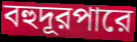
বহুদূরপারে